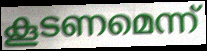
കൂടണമെന്ന്